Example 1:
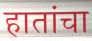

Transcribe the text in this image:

हातांचा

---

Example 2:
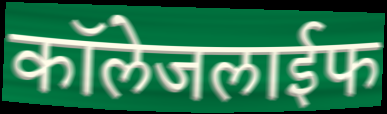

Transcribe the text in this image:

कॉलेजलाईफ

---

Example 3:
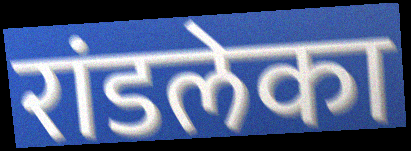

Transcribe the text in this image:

रांडलेका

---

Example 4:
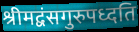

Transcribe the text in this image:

श्रीमद्वंसगुरुपध्दति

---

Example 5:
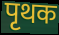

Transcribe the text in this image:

पृथक